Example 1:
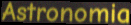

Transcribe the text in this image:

Astronomia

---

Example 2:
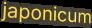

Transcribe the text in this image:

japonicum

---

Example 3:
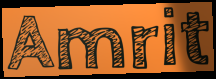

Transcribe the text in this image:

Amrit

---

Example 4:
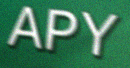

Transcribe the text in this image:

APY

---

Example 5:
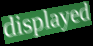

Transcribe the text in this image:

displayed